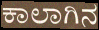
ಕಾಲಾಗಿನ